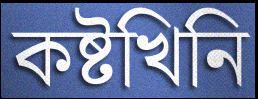
কষ্টখিনি